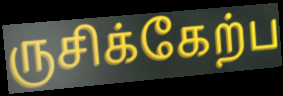
ருசிக்கேற்ப